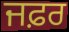
ਜਫ਼ਰ